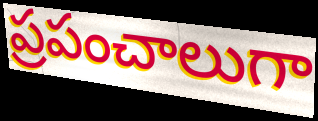
ప్రపంచాలుగా